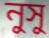
নুসু